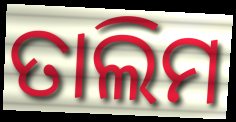
ତାଲିମ